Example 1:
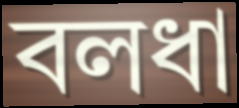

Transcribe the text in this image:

বলধা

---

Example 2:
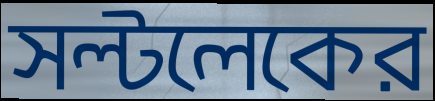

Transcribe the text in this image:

সল্টলেকের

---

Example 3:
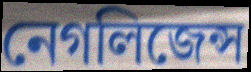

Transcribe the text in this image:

নেগলিজেন্স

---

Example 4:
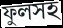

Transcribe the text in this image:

ফুলসহ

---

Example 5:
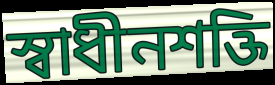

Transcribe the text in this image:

স্বাধীনশক্তি